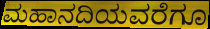
ಮಹಾನದಿಯವರೆಗೂ